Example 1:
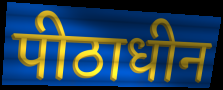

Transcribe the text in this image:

पीठाधीन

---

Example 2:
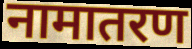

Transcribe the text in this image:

नामातरण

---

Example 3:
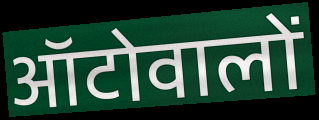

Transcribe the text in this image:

ऑटोवालों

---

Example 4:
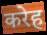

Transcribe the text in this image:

करेह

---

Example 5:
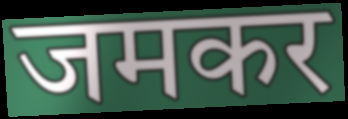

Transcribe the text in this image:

जमकर